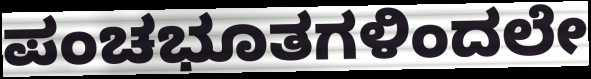
ಪಂಚಭೂತಗಳಿಂದಲೇ